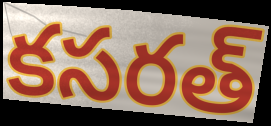
కసరత్